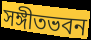
সঙ্গীতভবন